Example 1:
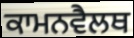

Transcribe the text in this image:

ਕਾਮਨਵੈਲਥ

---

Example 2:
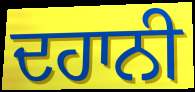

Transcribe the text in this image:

ਦਹਾਨੀ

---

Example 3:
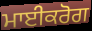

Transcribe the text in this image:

ਮਾਈਕਰੋਗ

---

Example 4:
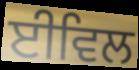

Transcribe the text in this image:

ਈਵਿਲ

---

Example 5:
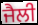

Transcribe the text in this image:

ਜੈਲੀ